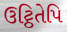
ઉટ્ઠિતેપિ